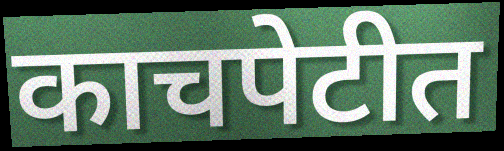
काचपेटीत